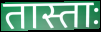
तास्ताः